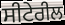
ਸੀਟੇਰੀਲ